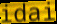
idai